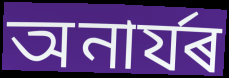
অনাৰ্যৰ